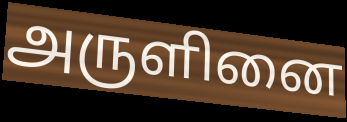
அருளினை